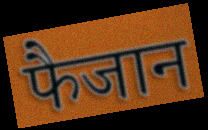
फैजान